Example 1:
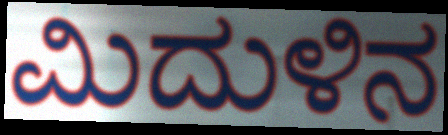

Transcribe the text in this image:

ಮಿದುಳಿನ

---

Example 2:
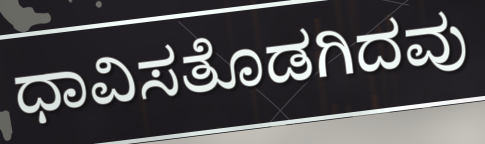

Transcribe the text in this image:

ಧಾವಿಸತೊಡಗಿದವು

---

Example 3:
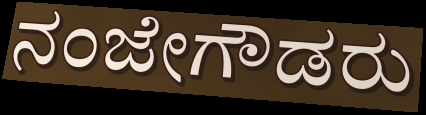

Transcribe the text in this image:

ನಂಜೇಗೌಡರು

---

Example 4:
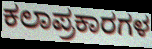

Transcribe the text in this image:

ಕಲಾಪ್ರಕಾರಗಳ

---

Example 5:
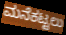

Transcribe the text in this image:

ಮನೆಕಟ್ಟಲು